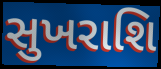
સુખરાશિ